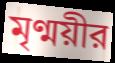
মৃণ্ময়ীর